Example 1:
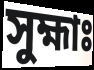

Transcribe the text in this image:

সুহ্মাঃ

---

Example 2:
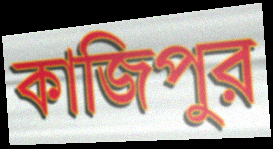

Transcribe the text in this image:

কাজিপুর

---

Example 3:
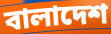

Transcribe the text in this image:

বালাদেশ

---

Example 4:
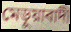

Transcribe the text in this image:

মেড়ুয়াবাদী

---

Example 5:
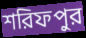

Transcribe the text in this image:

শরিফপুর